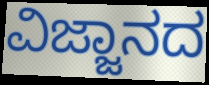
ವಿಜ್ಜಾನದ